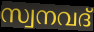
സ്വനവദ്